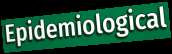
Epidemiological